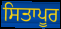
ਸਿਤਾਪੂਰ